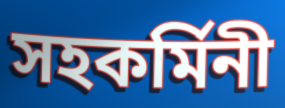
সহকর্মিনী